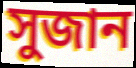
সুজান